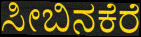
ಸೀಬಿನಕೆರೆ